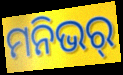
ମନିଭର୍